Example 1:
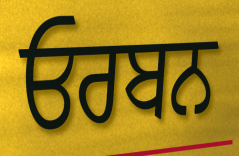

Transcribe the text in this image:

ਓਰਬਨ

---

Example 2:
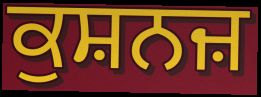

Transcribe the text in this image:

ਕੁਸ਼ਨਜ਼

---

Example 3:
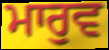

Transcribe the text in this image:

ਮਾਰੁਵ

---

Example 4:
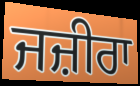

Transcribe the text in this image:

ਜਜ਼ੀਰਾ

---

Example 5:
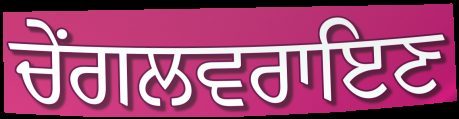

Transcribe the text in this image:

ਚੇਂਗਲਵਰਾਇਣ